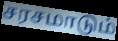
சரசமாடும்